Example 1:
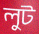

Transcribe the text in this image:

লুট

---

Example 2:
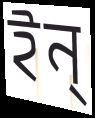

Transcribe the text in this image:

ইন্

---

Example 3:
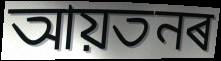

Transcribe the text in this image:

আয়তনৰ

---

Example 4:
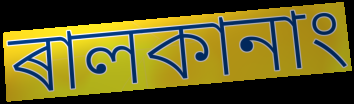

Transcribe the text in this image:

ৰালকানাং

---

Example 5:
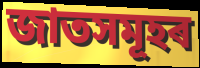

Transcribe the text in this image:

জাতসমূহৰ